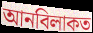
আনবিলাকত